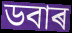
ডবাৰ